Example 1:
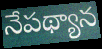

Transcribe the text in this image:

నేపథ్యాన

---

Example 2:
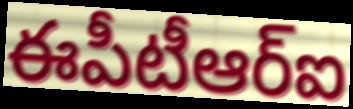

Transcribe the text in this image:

ఈపీటీఆర్ఐ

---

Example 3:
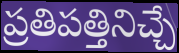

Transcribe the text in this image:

ప్రతిపత్తినిచ్చే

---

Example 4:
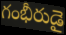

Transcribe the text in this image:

గంభీరుడై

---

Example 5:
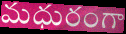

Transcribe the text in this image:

మధురంగా